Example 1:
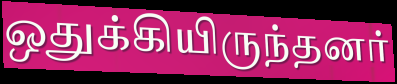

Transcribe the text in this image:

ஒதுக்கியிருந்தனர்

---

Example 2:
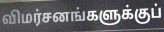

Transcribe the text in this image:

விமர்சனங்களுக்குப்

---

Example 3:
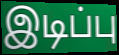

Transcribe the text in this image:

இடிப்பு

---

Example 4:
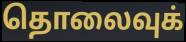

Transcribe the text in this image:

தொலைவுக்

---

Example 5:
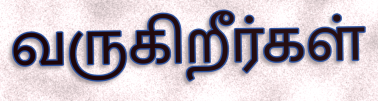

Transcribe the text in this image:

வருகிறீர்கள்